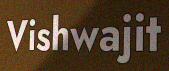
Vishwajit